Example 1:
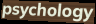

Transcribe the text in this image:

psychology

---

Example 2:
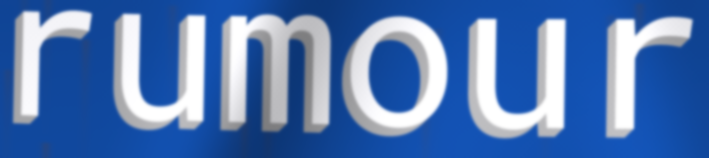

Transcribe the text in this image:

rumour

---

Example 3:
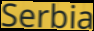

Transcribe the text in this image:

Serbia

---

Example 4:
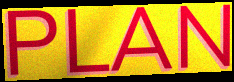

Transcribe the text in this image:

PLAN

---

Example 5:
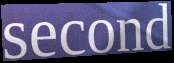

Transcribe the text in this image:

second